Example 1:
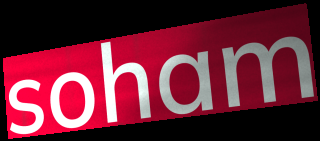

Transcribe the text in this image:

soham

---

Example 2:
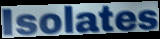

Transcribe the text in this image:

Isolates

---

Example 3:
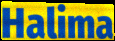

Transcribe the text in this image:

Halima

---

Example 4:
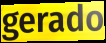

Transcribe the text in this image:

gerado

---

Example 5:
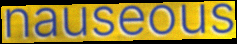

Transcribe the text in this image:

nauseous